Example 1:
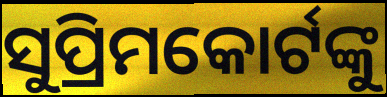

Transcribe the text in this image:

ସୁପ୍ରିମକୋର୍ଟଙ୍କୁ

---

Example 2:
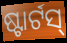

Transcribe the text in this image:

ଷ୍ଟାର୍ଟସ୍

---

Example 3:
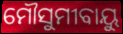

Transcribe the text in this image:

ମୌସୁମୀବାୟୁ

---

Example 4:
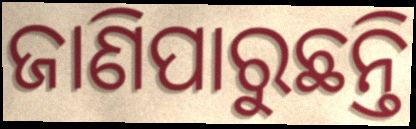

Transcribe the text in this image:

ଜାଣିପାରୁଛନ୍ତି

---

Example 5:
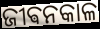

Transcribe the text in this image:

ଜୀଵନକାଳ